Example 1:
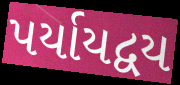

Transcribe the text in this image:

પર્યાયદ્વય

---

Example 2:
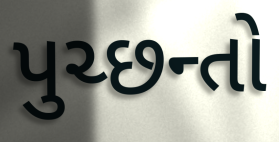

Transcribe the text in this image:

પુચ્છન્તો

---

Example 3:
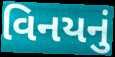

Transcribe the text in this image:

વિનયનું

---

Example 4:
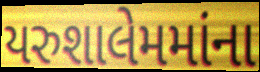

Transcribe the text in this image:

યરુશાલેમમાંના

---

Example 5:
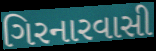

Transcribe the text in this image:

ગિરનારવાસી